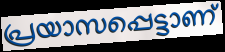
പ്രയാസപ്പെട്ടാണ്